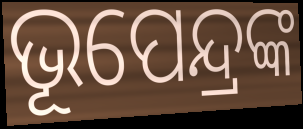
ଭୂପେନ୍ଦ୍ରଙ୍କ